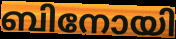
ബിനോയി